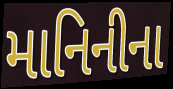
માનિનીના